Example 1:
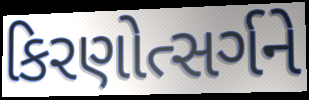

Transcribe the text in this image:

કિરણોત્સર્ગને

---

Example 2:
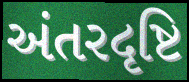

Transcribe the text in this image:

અંતરદૃષ્ટિ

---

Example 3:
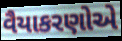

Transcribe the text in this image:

વૈયાકરણોએ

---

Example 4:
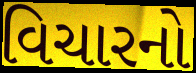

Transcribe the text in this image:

વિચારનો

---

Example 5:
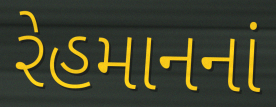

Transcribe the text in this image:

રેહમાનનાં